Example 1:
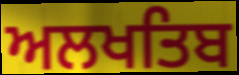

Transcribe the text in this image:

ਅਲਖਤਿਬ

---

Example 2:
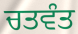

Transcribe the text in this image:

ਚਤਵੰਤ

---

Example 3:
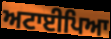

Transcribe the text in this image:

ਅਟਾਈਪਿਆ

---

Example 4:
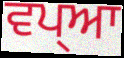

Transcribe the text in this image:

ਵਪ੍ਆ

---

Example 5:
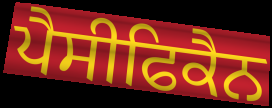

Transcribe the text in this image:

ਪੈਸੀਫਿਕੈਨ